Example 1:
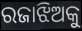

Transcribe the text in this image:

ରଜାଝିଅକୁ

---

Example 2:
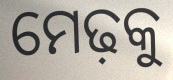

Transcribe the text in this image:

ମେଢ଼କୁ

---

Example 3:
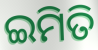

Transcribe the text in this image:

ଇମିତି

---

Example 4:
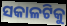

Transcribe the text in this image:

ସକାଳଟିକୁ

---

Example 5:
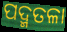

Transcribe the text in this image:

ପଦ୍ମତଳା